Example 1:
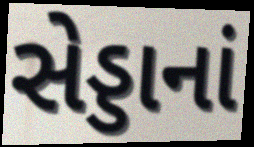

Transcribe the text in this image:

સેડ્ડાનાં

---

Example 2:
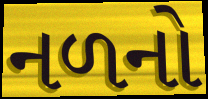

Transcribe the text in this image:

નળનો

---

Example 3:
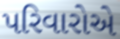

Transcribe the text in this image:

પરિવારોએ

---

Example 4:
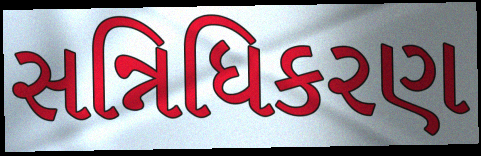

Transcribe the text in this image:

સન્નિધિકરણ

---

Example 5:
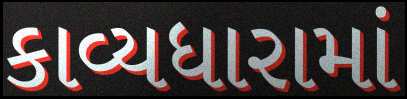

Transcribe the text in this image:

કાવ્યધારામાં